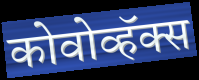
कोवोव्हॅक्स